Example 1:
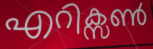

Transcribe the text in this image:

എറിക്സൺ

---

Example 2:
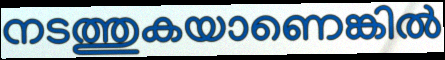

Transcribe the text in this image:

നടത്തുകയാണെങ്കിൽ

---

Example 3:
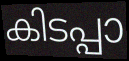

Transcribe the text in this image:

കിടപ്പാ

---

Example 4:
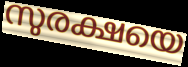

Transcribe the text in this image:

സുരക്ഷയെ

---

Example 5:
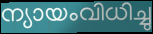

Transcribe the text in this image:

ന്യായംവിധിച്ചു